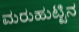
ಮರುಹುಟ್ಟಿನ